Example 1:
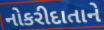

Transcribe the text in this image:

નોકરીદાતાને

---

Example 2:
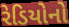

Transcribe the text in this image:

રેડિયોનો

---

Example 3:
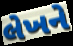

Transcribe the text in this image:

લેખને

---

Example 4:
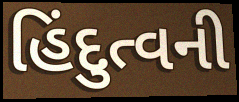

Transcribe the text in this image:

હિંદુત્વની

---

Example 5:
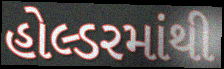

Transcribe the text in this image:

હોલ્ડરમાંથી